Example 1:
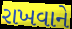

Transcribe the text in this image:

રાખવાને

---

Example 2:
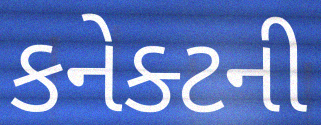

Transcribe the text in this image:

કનેક્ટની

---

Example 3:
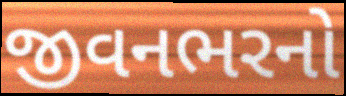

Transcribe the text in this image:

જીવનભરનો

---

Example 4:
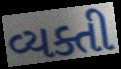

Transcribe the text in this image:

વ્યક્તી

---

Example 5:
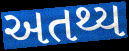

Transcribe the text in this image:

અતથ્ય